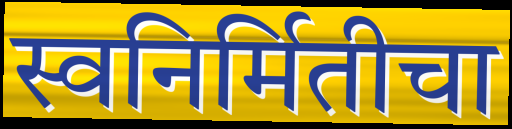
स्वनिर्मितीचा